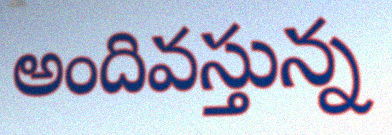
అందివస్తున్న